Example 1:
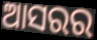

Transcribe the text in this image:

ଆସରର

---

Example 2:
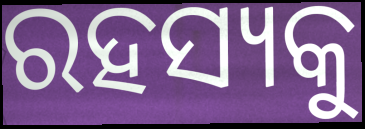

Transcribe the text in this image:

ରହସ୍ୟକୁ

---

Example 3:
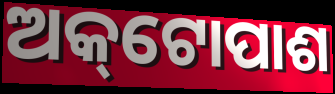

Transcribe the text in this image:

ଅକ୍‌ଟୋପାଶ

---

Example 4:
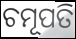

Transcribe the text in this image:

ଚମୂପତି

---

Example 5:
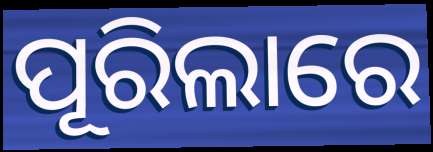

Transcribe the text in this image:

ପୂରିଲାରେ